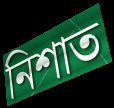
নিশাত